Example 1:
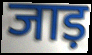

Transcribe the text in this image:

जाड़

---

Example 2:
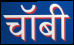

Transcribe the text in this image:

चॉबी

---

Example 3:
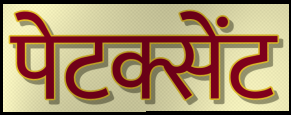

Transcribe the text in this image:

पेटक्सेंट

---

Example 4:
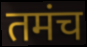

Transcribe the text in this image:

तमंच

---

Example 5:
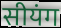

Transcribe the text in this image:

सीयंग